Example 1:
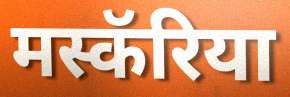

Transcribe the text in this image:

मस्कॅरिया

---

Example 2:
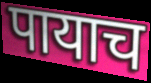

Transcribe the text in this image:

पायाच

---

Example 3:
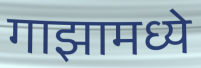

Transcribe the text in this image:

गाझामध्ये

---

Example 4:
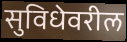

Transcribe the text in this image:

सुविधेवरील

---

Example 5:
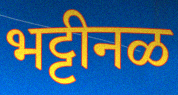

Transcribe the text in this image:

भट्टीनळ